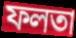
ফলতা